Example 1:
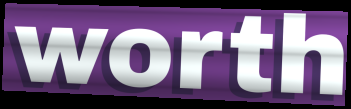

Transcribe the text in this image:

worth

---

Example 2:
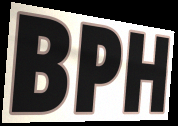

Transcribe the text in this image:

BPH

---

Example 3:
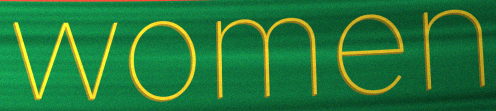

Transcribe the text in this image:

women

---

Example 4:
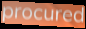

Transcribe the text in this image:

procured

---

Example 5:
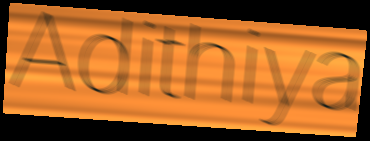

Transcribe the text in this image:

Adithiya